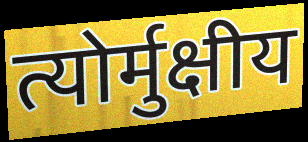
त्योर्मुक्षीय